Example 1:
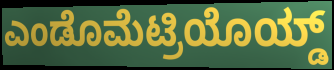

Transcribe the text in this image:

ಎಂಡೊಮೆಟ್ರಿಯೊಯ್ಡ್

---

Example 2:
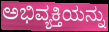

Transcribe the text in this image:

ಅಭಿವ್ಯಕ್ತಿಯನ್ನು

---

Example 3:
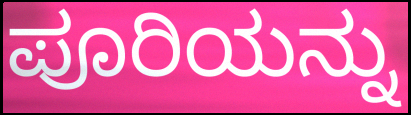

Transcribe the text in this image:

ಪೂರಿಯನ್ನು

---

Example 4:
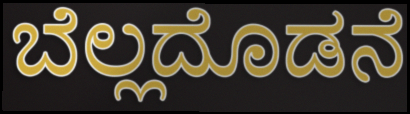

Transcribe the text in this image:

ಬೆಲ್ಲದೊಡನೆ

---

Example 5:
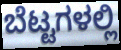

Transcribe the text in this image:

ಬೆಟ್ಟಗಳಲ್ಲಿ